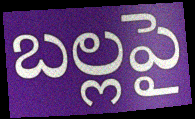
బల్లపై